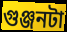
গুঞ্জনটা